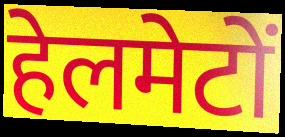
हेलमेटों